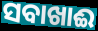
ସବାଖାଈ